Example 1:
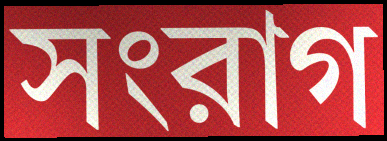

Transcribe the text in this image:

সংরাগ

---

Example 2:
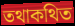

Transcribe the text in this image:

তথাকথিত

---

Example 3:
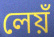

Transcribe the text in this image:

লেয়ঁ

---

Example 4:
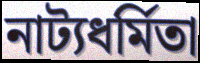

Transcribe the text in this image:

নাট্যধর্মিতা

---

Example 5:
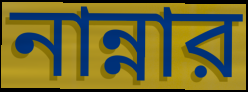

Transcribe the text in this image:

নান্নার